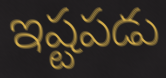
ఇష్టపడు